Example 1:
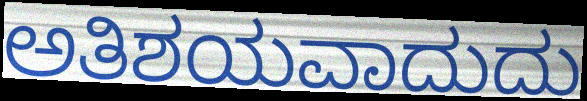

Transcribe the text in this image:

ಅತಿಶಯವಾದುದು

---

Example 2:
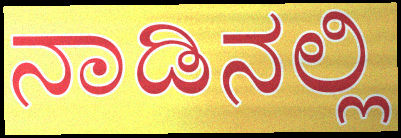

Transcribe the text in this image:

ನಾಡಿನಲ್ಲಿ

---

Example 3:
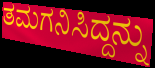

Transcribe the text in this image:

ತಮಗನಿಸಿದ್ದನ್ನು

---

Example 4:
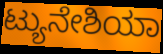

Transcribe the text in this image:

ಟ್ಯುನೇಶಿಯಾ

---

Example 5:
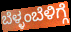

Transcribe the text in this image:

ಬೆಳ್ಳಂಬೆಳಿಗ್ಗೆ